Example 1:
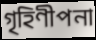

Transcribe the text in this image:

গৃহিণীপনা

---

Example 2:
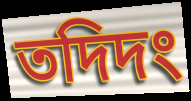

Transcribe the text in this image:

তদিদং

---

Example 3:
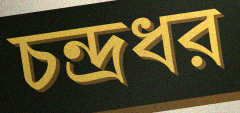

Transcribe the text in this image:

চন্দ্রধর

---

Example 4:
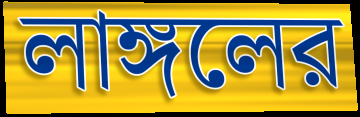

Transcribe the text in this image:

লাঙ্গলের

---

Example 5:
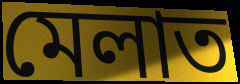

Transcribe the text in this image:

মেলাত